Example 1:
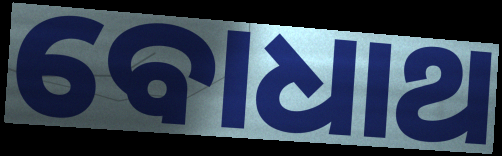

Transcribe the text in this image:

ବୋଧାଥ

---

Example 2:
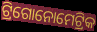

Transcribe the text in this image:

ଟ୍ରିଗୋନୋମେଟ୍ରିକ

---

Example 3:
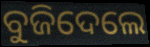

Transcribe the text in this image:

ବୁଜିଦେଲେ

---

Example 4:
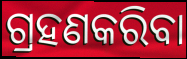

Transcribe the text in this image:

ଗ୍ରହଣକରିବା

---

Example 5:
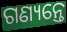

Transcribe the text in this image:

ଗଣ୍ୟନ୍ତେ